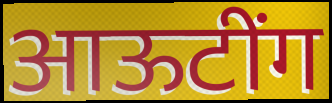
आऊटींग